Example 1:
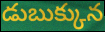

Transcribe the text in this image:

డుబుక్కున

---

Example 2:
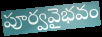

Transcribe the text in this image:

పూర్వవైభవం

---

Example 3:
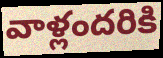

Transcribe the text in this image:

వాళ్లందరికి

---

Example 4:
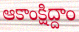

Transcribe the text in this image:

ఆకాంక్షిద్దాం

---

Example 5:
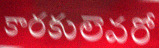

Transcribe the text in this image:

కారకులెవరో